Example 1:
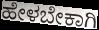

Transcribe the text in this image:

ಹೇಳಬೇಕಾಗಿ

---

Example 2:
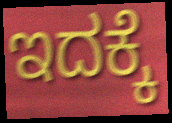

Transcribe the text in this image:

ಇದಕ್ಕೆ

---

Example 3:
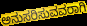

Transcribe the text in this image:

ಅನುಸರಿಸುವವರಾಗಿ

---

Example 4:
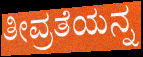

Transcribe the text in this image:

ತೀವ್ರತೆಯನ್ನ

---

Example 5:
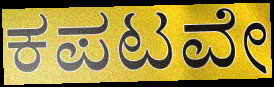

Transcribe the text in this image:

ಕಪಟವೇ